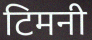
टिमनी